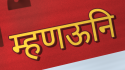
म्हणऊनि